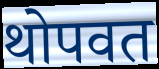
थोपवत